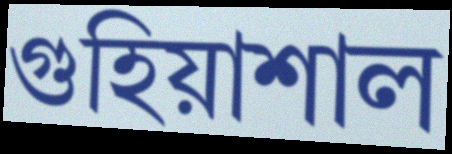
গুহিয়াশাল